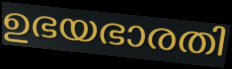
ഉഭയഭാരതി